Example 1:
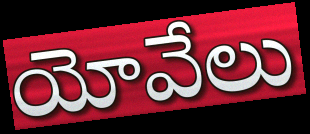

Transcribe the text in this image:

యోవేలు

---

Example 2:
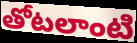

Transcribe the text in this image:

తోటలాంటి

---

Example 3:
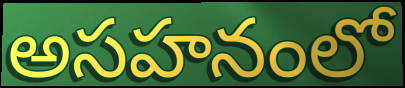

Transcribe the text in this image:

అసహనంలో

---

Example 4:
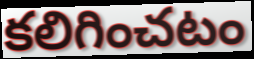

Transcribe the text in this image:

కలిగించటం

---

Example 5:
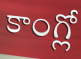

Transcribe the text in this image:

కాంగ్లో